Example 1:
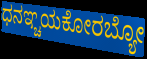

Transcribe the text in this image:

ಧನಞ್ಚಯಕೋರಬ್ಯೋ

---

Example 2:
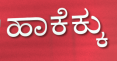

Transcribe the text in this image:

ಹಾಕೆಕ್ಕು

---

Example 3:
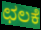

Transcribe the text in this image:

ಛಲಕೆ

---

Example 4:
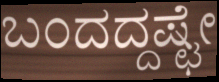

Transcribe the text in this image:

ಬಂದದ್ದಷ್ಟೇ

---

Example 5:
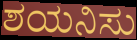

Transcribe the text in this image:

ಶಯನಿಸು